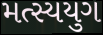
મત્સ્યયુગ